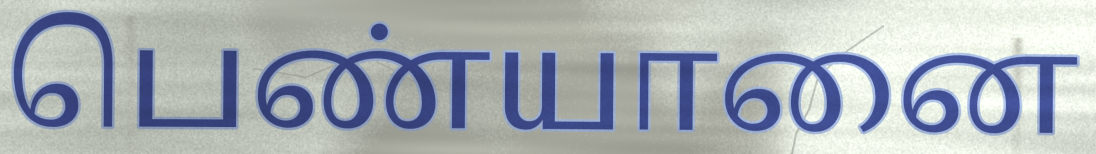
பெண்யானை